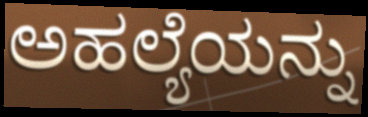
ಅಹಲ್ಯೆಯನ್ನು